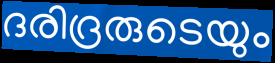
ദരിദ്രരുടെയും